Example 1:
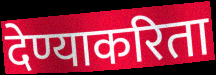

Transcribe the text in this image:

देण्याकरिता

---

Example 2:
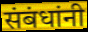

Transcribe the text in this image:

संबंधांनी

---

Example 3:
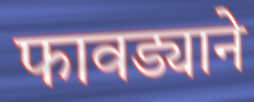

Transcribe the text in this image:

फावड्याने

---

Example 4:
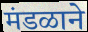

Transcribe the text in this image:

मंडळाने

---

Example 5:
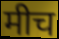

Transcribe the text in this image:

मीच